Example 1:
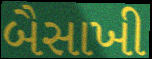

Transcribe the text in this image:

બૈસાખી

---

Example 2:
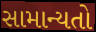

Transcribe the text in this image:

સામાન્યતો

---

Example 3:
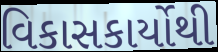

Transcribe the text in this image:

વિકાસકાર્યોથી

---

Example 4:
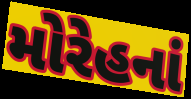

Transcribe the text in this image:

મોરેહનાં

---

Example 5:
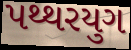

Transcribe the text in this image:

પથ્થરયુગ